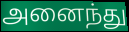
அனைந்து